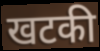
खटकी